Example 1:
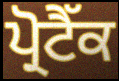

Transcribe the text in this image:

ਪ੍ਰੋਟੈੱਕ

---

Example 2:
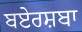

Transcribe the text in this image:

ਬਏਰਸ਼ਬਾ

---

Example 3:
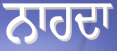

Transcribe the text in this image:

ਨਾਹਦਾ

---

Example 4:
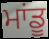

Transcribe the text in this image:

ਮਾਂਡੂ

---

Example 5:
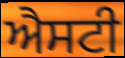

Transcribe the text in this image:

ਐਸਟੀ